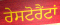
ਰੇਸਟੋਰੈਂਟਾਂ